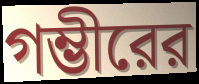
গম্ভীরের